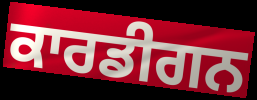
ਕਾਰਡੀਗਨ